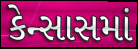
કેન્સાસમાં